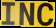
INC